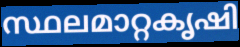
സ്ഥലമാറ്റകൃഷി